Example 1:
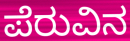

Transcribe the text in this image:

ಪೆರುವಿನ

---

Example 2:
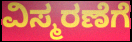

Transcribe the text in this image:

ವಿಸ್ಮರಣೆಗೆ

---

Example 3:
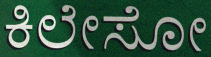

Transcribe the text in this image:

ಕಿಲೇಸೋ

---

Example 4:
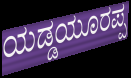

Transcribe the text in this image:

ಯಡ್ಡಯೂರಪ್ಪ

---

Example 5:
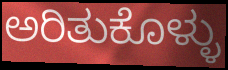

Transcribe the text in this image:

ಅರಿತುಕೊಳ್ಳು